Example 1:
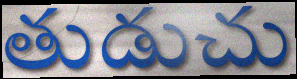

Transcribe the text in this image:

తుడుచు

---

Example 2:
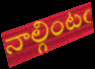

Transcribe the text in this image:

నాల్గింటఁ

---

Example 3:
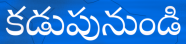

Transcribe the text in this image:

కడుపునుండి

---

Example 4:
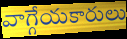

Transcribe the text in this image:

వాగ్గేయకారులు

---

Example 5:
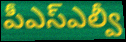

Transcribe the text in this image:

పీఎస్ఎల్వీ